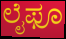
ಲೈಫೂ